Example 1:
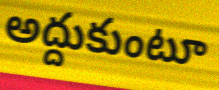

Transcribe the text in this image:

అద్దుకుంటూ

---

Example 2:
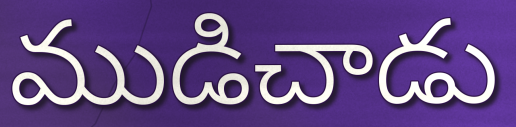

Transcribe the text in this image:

ముడిచాడు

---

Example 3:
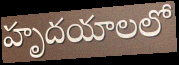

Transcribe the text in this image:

హృదయాలలో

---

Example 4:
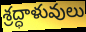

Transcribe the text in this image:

శ్రద్ధాళువులు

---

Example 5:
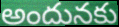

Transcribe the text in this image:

అందునకు